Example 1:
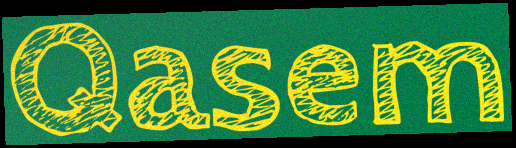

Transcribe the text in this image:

Qasem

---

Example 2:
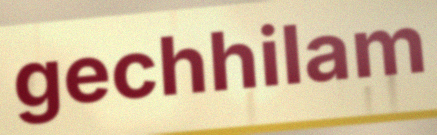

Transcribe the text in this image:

gechhilam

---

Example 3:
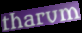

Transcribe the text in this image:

tharum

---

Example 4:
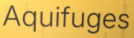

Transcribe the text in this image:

Aquifuges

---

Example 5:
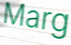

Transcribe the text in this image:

Marg